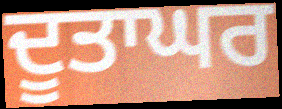
ਦੂਤਾਘਰ